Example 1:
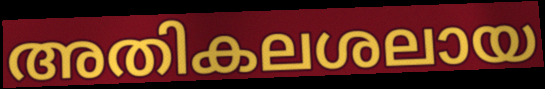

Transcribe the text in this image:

അതികലശലായ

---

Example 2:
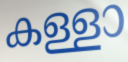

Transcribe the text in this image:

കള്ളാ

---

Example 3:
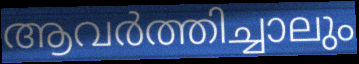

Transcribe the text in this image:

ആവർത്തിച്ചാലും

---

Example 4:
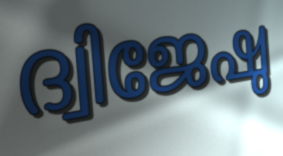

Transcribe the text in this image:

ദ്വിജേഷു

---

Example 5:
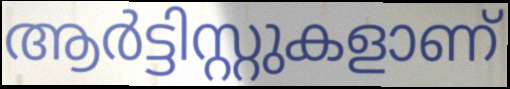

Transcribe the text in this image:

ആർട്ടിസ്റ്റുകളാണ്